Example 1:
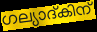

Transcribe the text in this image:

ഗല്യാദ്കിന്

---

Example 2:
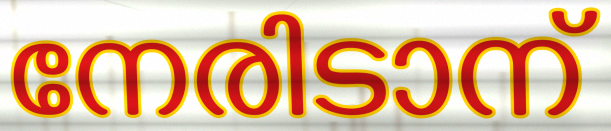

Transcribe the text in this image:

നേരിടാന്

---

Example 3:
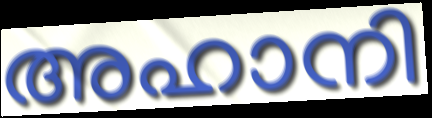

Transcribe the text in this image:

അഹാനി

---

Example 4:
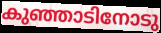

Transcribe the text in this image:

കുഞ്ഞാടിനോടു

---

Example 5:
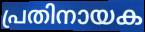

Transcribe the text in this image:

പ്രതിനായക